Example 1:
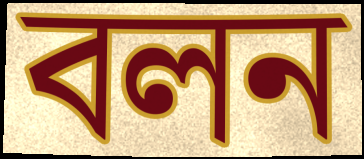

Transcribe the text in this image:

বলন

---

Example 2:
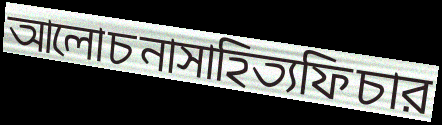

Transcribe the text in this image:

আলোচনাসাহিত্যফিচার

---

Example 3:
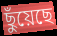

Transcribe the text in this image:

ছুঁয়েছে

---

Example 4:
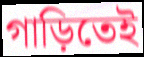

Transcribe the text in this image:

গাড়িতেই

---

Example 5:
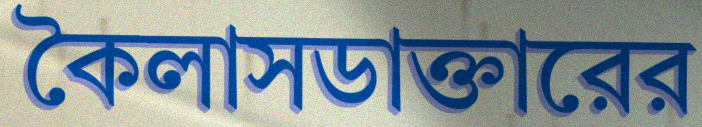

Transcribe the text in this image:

কৈলাসডাক্তারের